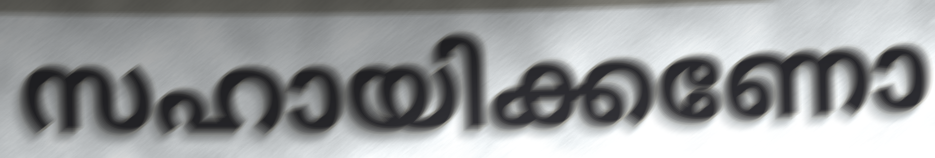
സഹായിക്കണോ